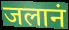
जलानं